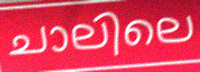
ചാലിലെ